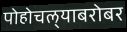
पोहोचल्याबरोबर